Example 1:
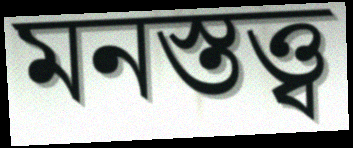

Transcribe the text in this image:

মনস্তত্ত্ব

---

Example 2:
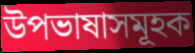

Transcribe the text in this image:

উপভাষাসমূহক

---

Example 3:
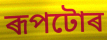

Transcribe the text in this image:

ৰূপটোৰ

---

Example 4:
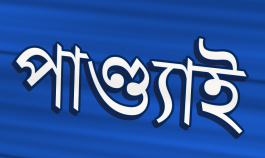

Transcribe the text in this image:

পাণ্ড্যাই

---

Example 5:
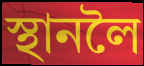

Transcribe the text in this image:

স্থানলৈ